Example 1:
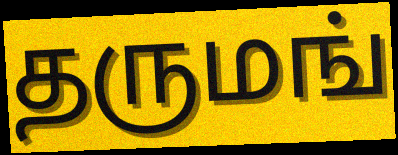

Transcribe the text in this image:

தருமங்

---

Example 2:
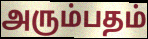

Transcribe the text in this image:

அரும்பதம்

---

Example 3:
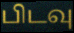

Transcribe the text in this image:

பிடவு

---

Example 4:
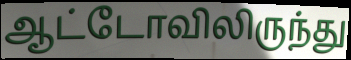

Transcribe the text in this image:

ஆட்டோவிலிருந்து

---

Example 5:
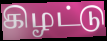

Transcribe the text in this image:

கிழட்டு